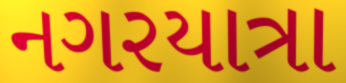
નગરયાત્રા